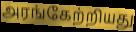
அரங்கேற்றியது